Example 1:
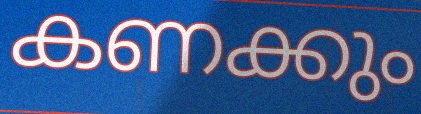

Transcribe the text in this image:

കണക്കും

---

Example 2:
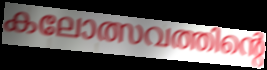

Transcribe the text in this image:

കലോത്സവത്തിന്റെ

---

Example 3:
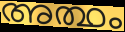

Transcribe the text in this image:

അത്ഥം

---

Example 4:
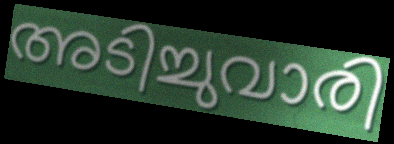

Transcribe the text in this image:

അടിച്ചുവാരി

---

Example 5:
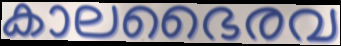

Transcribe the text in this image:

കാലഭൈരവ